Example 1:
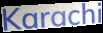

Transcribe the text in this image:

Karachi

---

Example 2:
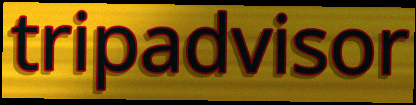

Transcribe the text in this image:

tripadvisor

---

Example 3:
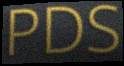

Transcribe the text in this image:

PDS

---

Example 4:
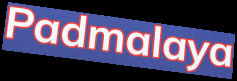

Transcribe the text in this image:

Padmalaya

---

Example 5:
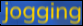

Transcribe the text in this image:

jogging